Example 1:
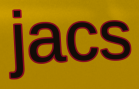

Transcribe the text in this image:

jacs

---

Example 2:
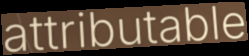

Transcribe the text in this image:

attributable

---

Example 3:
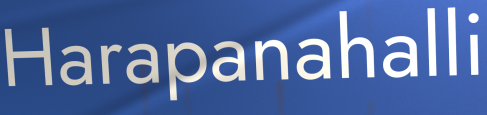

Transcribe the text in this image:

Harapanahalli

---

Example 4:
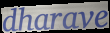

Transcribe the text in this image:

dharave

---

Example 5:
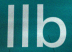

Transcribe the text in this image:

llb